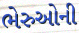
ભેરુઓની